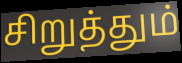
சிறுத்தும்